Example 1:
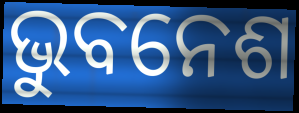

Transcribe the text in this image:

ଭୁବନେଶ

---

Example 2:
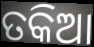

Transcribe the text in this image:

ତକିଆ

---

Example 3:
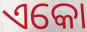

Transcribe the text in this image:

ଏକୋ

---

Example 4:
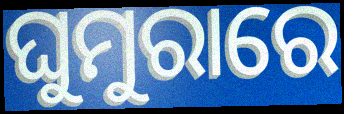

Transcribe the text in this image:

ଘୁମୁରାରେ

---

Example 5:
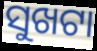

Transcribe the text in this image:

ସୁଖଟା